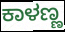
ಕಾಳಣ್ಣ